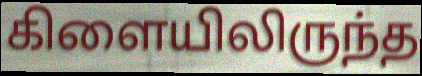
கிளையிலிருந்த